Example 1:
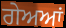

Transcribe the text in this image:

ਗੇਅਆਂ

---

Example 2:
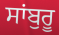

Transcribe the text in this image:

ਸਾਂਬੁਰੂ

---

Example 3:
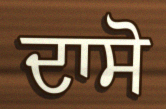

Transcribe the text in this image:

ਦਾਸੋ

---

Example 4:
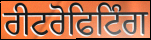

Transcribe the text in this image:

ਰੀਟਰੋਫਿਟਿੰਗ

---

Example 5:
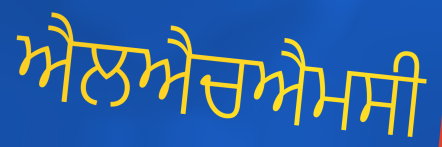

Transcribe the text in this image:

ਐਲਐਚਐਮਸੀ